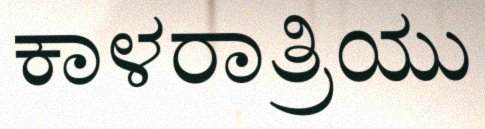
ಕಾಳರಾತ್ರಿಯು